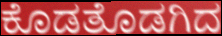
ಕೊಡತೊಡಗಿದ